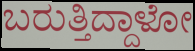
ಬರುತ್ತಿದ್ದಾಳೋ